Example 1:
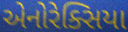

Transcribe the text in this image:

એનોરેક્સિયા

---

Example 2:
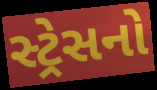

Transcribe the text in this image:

સ્ટ્રેસનો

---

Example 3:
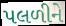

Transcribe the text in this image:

પલળીને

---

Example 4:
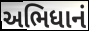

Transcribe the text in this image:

અભિધાનં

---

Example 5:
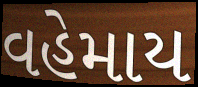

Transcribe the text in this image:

વહેમાય